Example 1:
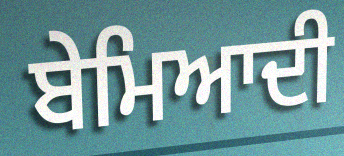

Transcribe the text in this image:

ਬੇਮਿਆਦੀ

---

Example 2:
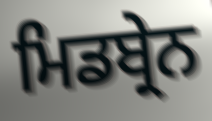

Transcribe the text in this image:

ਮਿਡਬ੍ਰੇਨ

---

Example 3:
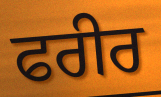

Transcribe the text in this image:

ਫਰੀਰ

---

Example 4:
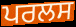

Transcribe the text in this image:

ਪਰਲਸ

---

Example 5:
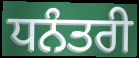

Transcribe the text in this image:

ਧਨੰਤਰੀ